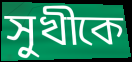
সুখীকে